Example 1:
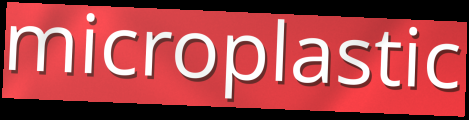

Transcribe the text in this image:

microplastic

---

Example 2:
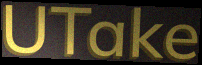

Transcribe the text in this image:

UTake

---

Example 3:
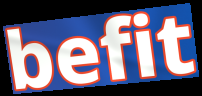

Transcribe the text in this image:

befit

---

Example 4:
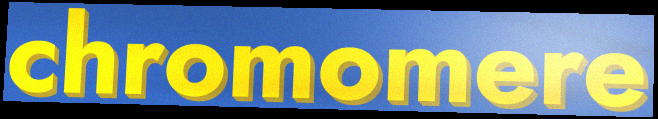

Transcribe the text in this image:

chromomere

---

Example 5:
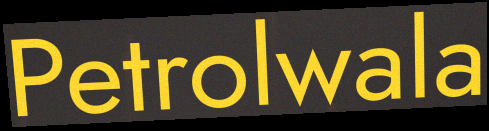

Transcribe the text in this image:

Petrolwala